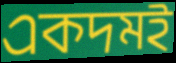
একদমই